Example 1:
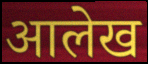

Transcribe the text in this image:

आलेख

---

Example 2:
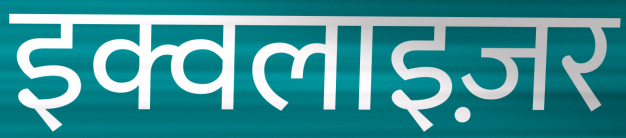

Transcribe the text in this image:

इक्वलाइज़र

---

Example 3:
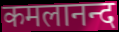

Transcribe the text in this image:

कमलानन्द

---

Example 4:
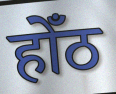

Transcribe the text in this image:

होँठ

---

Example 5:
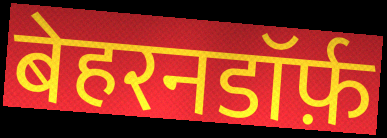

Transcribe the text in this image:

बेहरनडॉर्फ़